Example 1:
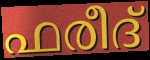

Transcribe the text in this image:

ഫരീദ്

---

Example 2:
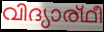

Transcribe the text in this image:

വിദ്യാര്ഥീ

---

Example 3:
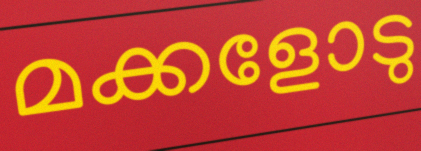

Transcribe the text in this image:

മക്കളോടു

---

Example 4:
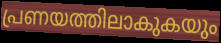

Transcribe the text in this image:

പ്രണയത്തിലാകുകയും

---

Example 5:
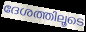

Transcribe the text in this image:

ദേശത്തിലൂടെ